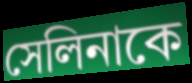
সেলিনাকে